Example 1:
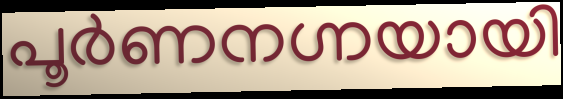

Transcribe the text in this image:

പൂർണനഗ്നയായി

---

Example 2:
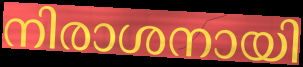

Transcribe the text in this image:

നിരാശനായി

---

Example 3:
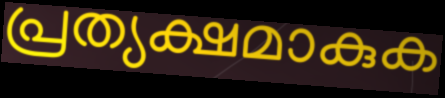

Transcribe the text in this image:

പ്രത്യക്ഷമാകുക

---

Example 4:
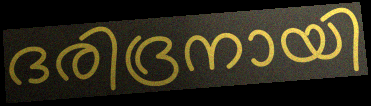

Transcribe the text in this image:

ദരിദ്രനായി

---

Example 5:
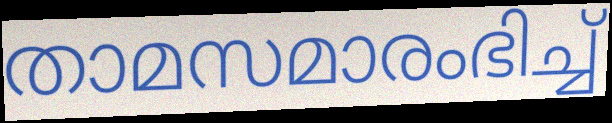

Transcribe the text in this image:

താമസമാരംഭിച്ച്